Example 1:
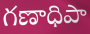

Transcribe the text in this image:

గణాధిపా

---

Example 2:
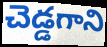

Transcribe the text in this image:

చెడ్డగాని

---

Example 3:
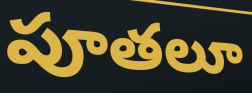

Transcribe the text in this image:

పూతలూ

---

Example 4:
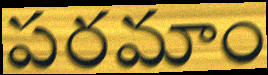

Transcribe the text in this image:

పరమాం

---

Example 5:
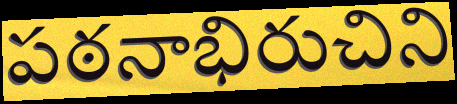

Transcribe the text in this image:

పఠనాభిరుచిని